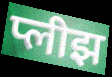
प्लीझ